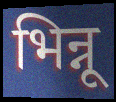
भिन्नू